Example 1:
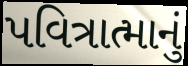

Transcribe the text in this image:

પવિત્રાત્માનું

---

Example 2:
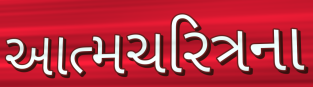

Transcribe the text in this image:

આત્મચરિત્રના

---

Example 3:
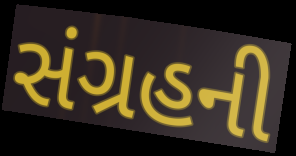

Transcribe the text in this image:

સંગ્રહની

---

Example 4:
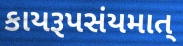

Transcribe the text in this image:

કાયરૂપસંયમાત્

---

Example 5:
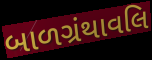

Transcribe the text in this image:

બાળગ્રંથાવલિ